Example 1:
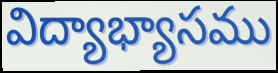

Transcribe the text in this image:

విద్యాభ్యాసము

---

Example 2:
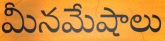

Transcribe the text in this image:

మీనమేషాలు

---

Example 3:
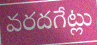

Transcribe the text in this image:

వరదగేట్లు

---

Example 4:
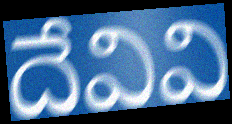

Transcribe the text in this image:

దేవివి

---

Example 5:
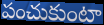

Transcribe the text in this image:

పంచుకుంటా